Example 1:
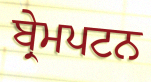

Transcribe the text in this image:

ਬ੍ਰੇਮਪਟਨ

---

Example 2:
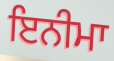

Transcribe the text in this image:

ਇਨੀਮਾ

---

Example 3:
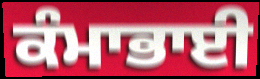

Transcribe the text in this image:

ਕੰਮਾਭਾਈ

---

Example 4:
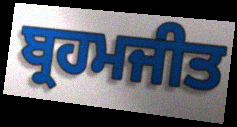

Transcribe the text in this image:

ਬ੍ਰਹਮਜੀਤ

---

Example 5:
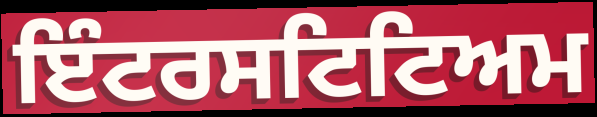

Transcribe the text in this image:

ਇੰਟਰਸਟਿਟਿਅਮ